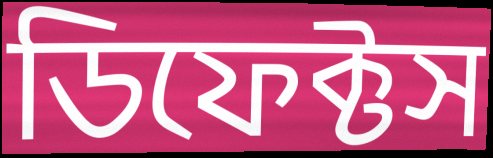
ডিফেক্টস